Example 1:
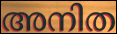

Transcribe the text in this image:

അനിത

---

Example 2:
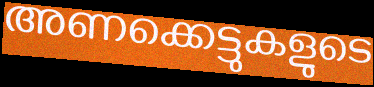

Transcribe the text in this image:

അണക്കെട്ടുകളുടെ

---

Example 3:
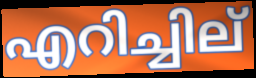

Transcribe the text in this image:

എറിച്ചില്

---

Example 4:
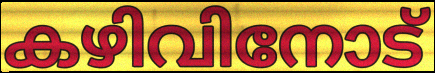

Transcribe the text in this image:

കഴിവിനോട്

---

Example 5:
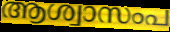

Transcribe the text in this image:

ആശ്വാസംപ